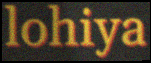
lohiya